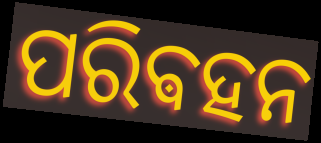
ପରିଵହନ